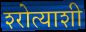
श्रोत्याशी